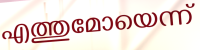
എത്തുമോയെന്ന്